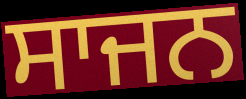
ਸਾਜਨ